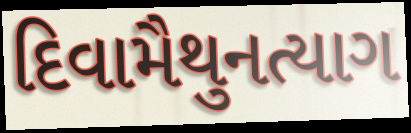
દિવામૈથુનત્યાગ